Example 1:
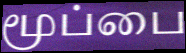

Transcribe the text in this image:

மூப்பை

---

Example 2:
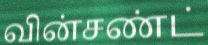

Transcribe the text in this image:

வின்சண்ட்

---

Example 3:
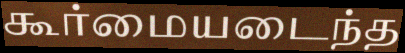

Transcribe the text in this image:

கூர்மையடைந்த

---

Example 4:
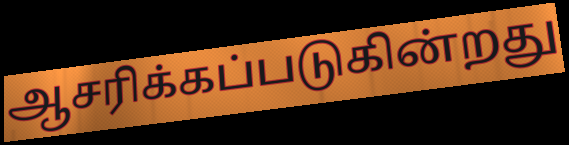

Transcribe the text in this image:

ஆசரிக்கப்படுகின்றது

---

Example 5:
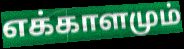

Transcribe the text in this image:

எக்காளமும்